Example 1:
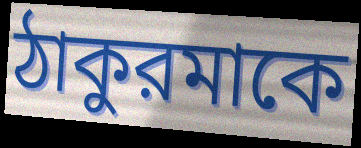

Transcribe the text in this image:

ঠাকুরমাকে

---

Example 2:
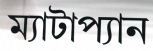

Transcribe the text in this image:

ম্যাটাপ্যান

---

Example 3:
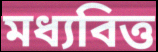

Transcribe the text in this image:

মধ্যবিত্ত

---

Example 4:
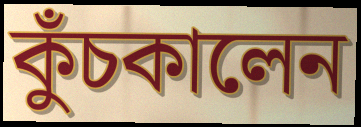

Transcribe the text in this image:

কুঁচকালেন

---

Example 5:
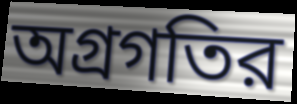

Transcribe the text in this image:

অগ্রগতির